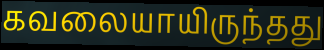
கவலையாயிருந்தது